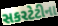
સકરટેટીના